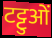
टट्टुओं